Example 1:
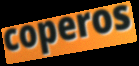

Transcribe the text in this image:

coperos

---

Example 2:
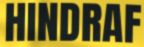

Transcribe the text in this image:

HINDRAF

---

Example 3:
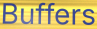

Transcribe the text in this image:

Buffers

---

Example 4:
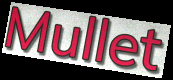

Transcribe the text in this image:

Mullet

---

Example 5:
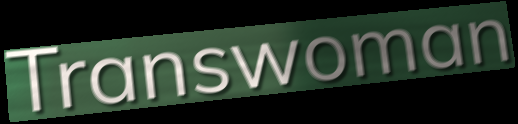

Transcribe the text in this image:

Transwoman